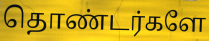
தொண்டர்களே